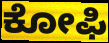
ಕೋಫಿ